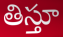
తిస్తూ